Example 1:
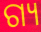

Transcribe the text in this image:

ଗ୍ୟ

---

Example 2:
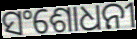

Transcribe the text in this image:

ସଂଶୋଧନୀ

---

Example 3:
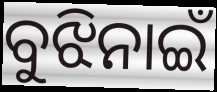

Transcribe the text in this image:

ବୁଝିନାଇଁ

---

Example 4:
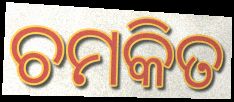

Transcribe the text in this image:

ଚମକିତ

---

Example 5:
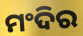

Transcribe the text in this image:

ମଂଦିର